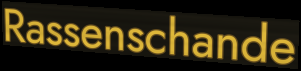
Rassenschande